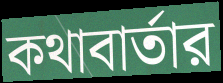
কথাবার্তার